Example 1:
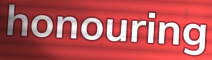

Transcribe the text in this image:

honouring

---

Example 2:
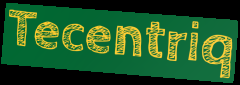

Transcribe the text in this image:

Tecentriq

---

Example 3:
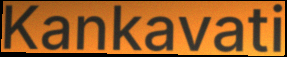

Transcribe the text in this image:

Kankavati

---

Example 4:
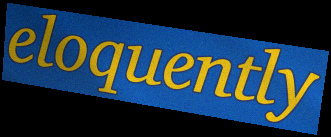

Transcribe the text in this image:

eloquently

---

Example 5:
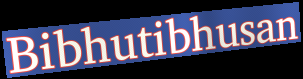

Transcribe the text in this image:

Bibhutibhusan